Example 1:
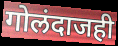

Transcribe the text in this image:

गोलंदाजही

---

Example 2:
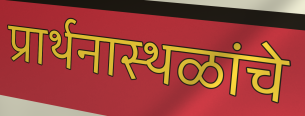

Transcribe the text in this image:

प्रार्थनास्थळांचे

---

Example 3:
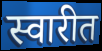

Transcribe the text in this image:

स्वारीत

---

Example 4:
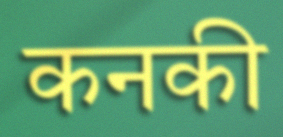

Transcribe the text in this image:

कनकी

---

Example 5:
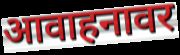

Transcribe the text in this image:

आवाहनावर